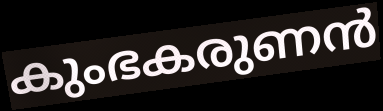
കുംഭകരുണൻ